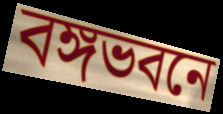
বঙ্গভবনে